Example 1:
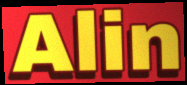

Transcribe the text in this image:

Alin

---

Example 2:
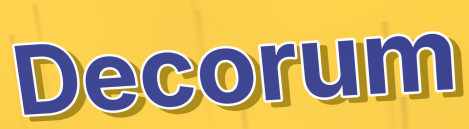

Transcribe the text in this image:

Decorum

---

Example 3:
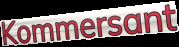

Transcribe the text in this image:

Kommersant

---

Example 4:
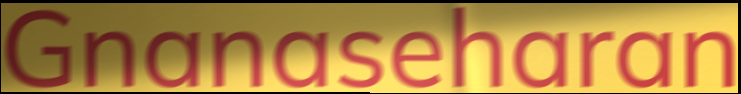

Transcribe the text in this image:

Gnanaseharan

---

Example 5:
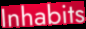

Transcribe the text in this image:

Inhabits